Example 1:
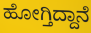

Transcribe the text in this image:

ಹೋಗ್ತಿದ್ದಾನೆ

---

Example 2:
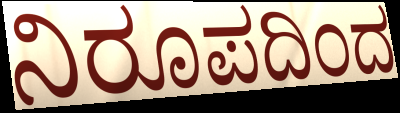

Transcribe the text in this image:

ನಿರೂಪದಿಂದ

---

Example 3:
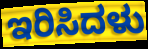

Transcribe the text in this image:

ಇರಿಸಿದಳು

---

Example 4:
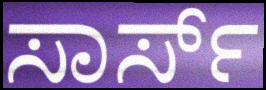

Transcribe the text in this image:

ಸಾರ್ಸ್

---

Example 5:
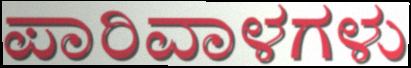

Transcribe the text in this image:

ಪಾರಿವಾಳಗಳು